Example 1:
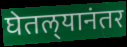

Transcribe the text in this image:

घेतल्यानंतर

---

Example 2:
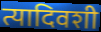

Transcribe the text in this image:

त्यादिवशी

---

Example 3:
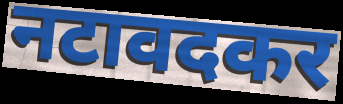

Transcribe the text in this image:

नटावदकर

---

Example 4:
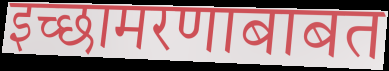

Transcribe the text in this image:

इच्छामरणाबाबत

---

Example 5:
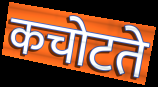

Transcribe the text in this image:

कचोटते